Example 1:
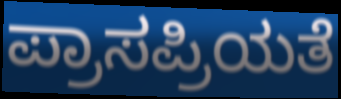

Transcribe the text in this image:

ಪ್ರಾಸಪ್ರಿಯತೆ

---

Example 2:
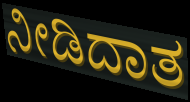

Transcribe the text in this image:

ನೀಡಿದಾತ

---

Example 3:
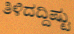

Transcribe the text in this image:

ತಿಳಿದದ್ದಿಷ್ಟು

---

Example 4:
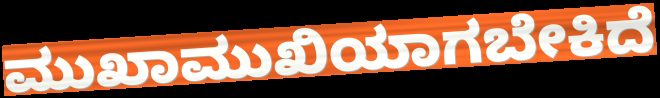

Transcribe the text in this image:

ಮುಖಾಮುಖಿಯಾಗಬೇಕಿದೆ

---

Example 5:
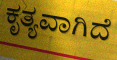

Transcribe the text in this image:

ಕೃತ್ಯವಾಗಿದೆ